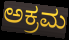
ಅಕ್ರಮ